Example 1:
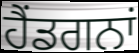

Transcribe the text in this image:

ਹੈਂਡਗਨਾਂ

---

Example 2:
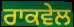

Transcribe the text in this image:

ਰਾਕਵੇਲ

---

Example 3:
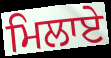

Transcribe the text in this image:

ਮਿਲਾਏ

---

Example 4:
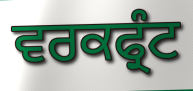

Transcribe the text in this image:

ਵਰਕਫ੍ਰੰਟ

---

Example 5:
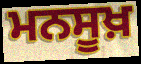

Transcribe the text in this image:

ਮਨਸੂਖ਼